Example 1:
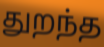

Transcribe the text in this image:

துறந்த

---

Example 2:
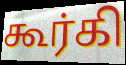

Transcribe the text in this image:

கூர்கி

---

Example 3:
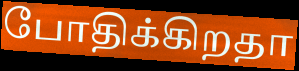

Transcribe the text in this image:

போதிக்கிறதா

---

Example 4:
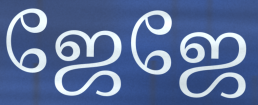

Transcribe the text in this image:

ஜேஜே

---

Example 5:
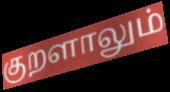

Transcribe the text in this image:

குறளாலும்